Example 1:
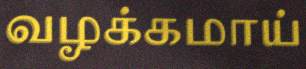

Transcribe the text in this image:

வழக்கமாய்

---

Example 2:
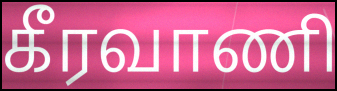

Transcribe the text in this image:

கீரவாணி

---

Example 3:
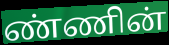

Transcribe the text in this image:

ண்ணின்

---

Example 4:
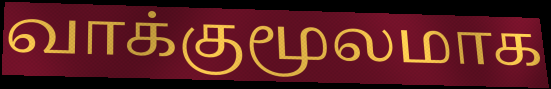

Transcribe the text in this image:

வாக்குமூலமாக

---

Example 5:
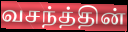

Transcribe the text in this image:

வசந்த்தின்